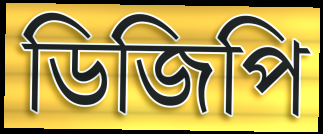
ডিজিপি